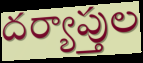
దర్యాప్తుల